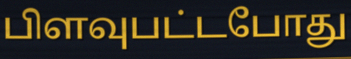
பிளவுபட்டபோது